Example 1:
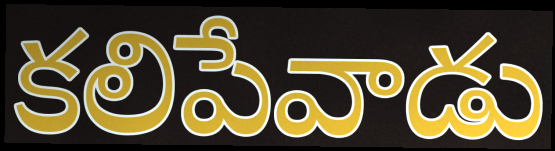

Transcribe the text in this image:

కలిపేవాడు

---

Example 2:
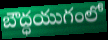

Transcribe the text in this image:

బౌద్ధయుగంలో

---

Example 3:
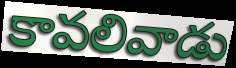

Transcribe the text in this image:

కావలివాడు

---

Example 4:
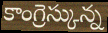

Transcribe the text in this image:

కాంగ్రెస్కున్న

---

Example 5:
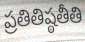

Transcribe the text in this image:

ప్రతితిష్ఠతీతి